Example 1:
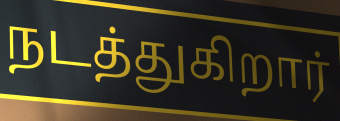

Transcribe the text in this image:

நடத்துகிறார்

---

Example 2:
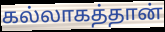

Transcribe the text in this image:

கல்லாகத்தான்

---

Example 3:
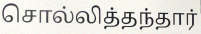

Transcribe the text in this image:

சொல்லித்தந்தார்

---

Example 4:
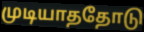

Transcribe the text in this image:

முடியாததோடு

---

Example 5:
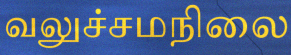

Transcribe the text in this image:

வலுச்சமநிலை